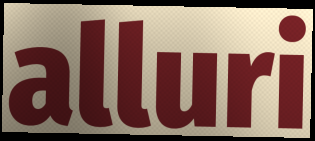
alluri